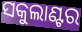
ସକୁଲାଣ୍ଟର